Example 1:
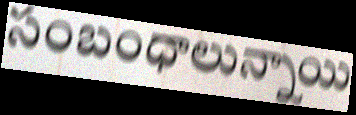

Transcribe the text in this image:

సంబంధాలున్నాయి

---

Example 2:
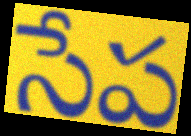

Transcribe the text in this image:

సేప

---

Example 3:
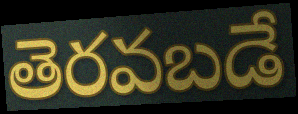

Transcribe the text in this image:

తెరవబడే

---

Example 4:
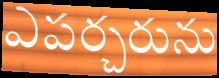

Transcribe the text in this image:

ఎపర్చరును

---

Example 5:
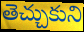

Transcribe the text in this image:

తెచ్చుకుని